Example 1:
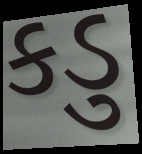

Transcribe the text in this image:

કડુ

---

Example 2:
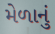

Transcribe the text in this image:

મેળાનું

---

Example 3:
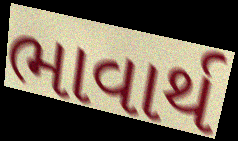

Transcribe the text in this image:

ભાવાર્થ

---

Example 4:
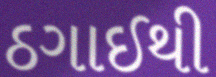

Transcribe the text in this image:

ઠગાઈથી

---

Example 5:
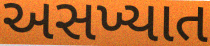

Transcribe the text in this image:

અસખ્યાત